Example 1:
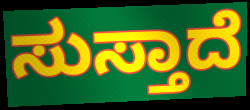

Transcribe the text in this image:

ಸುಸ್ತಾದೆ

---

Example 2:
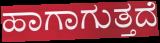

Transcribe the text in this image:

ಹಾಗಾಗುತ್ತದೆ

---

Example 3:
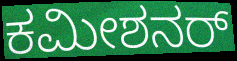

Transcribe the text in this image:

ಕಮೀಶನರ್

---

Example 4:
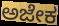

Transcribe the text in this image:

ಅಜೇಕ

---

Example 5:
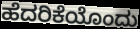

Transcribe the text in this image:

ಹೆದರಿಕೆಯೊಂದು